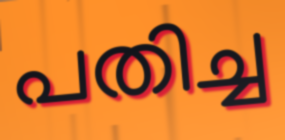
പതിച്ച